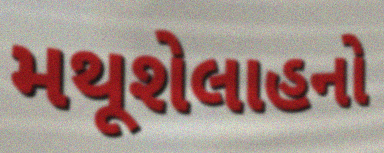
મથૂશેલાહનો